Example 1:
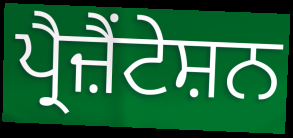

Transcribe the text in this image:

ਪ੍ਰੈਜ਼ੈਂਟੇਸ਼ਨ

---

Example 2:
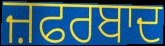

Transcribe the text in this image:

ਜ਼ਫਰਬਾਦ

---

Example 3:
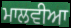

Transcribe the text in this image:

ਮਾਲਵੀਆ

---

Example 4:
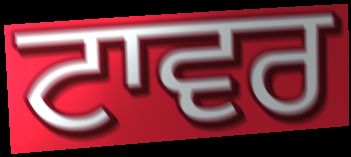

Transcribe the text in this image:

ਟਾਵਰ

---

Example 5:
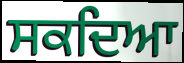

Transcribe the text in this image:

ਸਕਦਿਆ